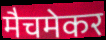
मैचमेकर